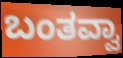
ಬಂತವ್ವಾ